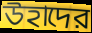
উহাদের